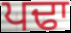
ਪਢਾ